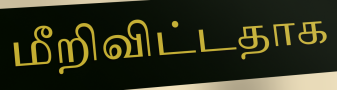
மீறிவிட்டதாக